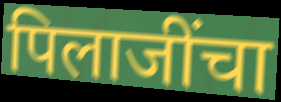
पिलाजींचा